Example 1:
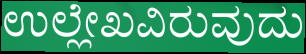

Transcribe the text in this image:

ಉಲ್ಲೇಖವಿರುವುದು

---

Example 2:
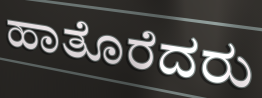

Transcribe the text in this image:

ಹಾತೊರೆದರು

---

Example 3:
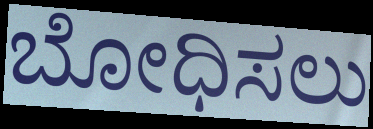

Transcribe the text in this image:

ಬೋಧಿಸಲು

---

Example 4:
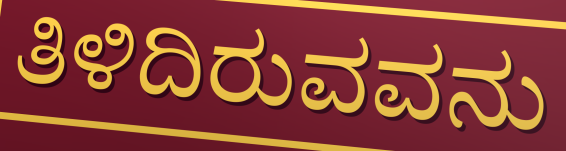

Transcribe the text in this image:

ತಿಳಿದಿರುವವನು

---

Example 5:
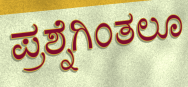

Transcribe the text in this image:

ಪ್ರಶ್ನೆಗಿಂತಲೂ